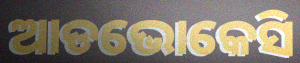
ଆଡଭୋକେସି